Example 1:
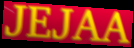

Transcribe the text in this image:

JEJAA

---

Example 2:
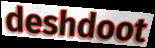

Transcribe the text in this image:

deshdoot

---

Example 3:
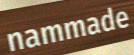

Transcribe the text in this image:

nammade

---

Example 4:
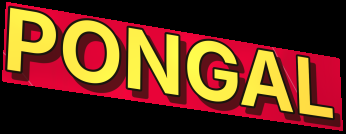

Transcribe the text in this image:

PONGAL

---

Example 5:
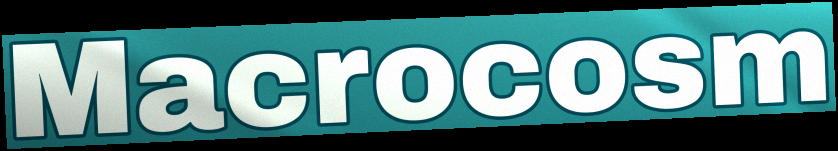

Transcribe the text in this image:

Macrocosm